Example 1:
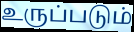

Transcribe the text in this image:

உருப்படும்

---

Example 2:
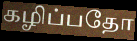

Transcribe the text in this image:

கழிப்பதோ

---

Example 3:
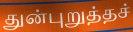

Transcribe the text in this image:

துன்புறுத்தச்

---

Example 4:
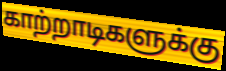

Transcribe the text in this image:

காற்றாடிகளுக்கு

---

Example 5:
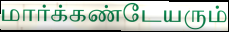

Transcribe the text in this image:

மார்க்கண்டேயரும்